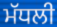
ਮੱਧਲੀ